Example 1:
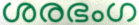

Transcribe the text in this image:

ശരഭംഗ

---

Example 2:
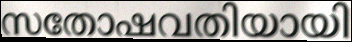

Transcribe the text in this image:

സതോഷവതിയായി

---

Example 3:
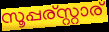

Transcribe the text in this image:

സൂപ്പര്സ്റ്റാര്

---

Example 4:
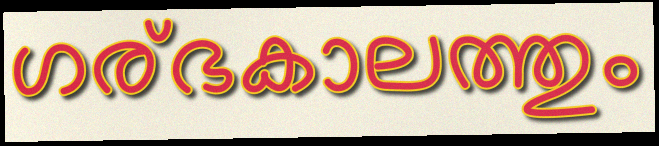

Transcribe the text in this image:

ഗര്ഭകാലത്തും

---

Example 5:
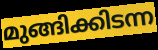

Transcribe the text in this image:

മുങ്ങിക്കിടന്ന